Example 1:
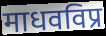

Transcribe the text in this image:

माधवविप्र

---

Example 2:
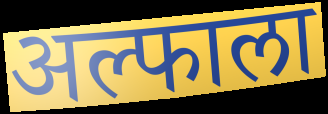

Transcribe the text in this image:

अल्फाला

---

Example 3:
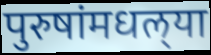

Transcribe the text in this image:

पुरुषांमधल्या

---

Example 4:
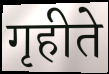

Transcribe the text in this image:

गृहीते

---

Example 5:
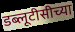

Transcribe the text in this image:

डब्लूटीसीच्या